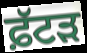
ਫ਼ੱਟੜ